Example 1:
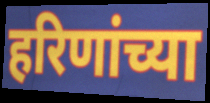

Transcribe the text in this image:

हरिणांच्या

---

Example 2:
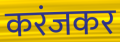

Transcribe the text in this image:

करंजकर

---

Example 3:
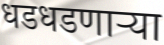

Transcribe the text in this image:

धडधडणाऱ्या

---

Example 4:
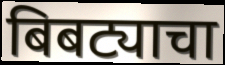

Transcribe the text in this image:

बिबट्याचा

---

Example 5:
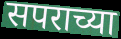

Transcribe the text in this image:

सपराच्या